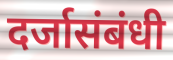
दर्जासंबंधी